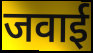
जवाई